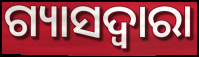
ଗ୍ୟାସଦ୍ଵାରା